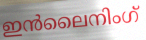
ഇൻലൈനിംഗ്